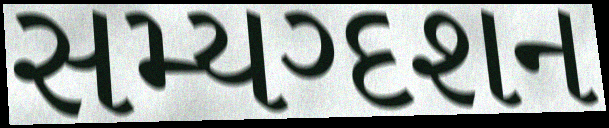
સમ્યગ્દશન